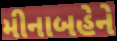
મીનાબહેને